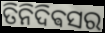
ତିନିଦିଵସର